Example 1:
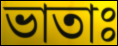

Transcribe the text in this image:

ভাতাঃ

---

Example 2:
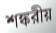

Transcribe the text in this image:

শঙ্করীয়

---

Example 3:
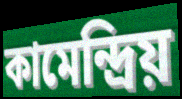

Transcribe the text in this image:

কামেন্দ্রিয়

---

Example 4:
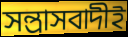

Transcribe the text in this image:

সন্ত্রাসবাদীই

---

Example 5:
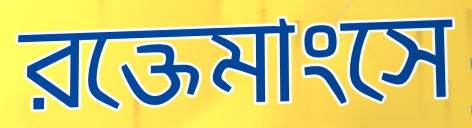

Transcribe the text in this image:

রক্তেমাংসে